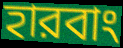
হারবাং